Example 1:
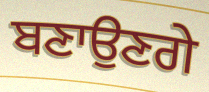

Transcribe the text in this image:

ਬਣਾਉਣਗੇ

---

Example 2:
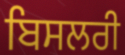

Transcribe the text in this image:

ਬਿਸਲਰੀ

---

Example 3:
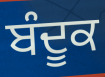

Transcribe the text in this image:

ਬੰਦੂਕ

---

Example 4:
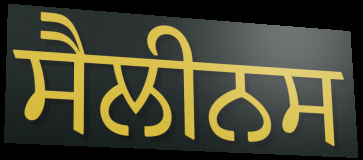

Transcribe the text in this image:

ਸੈਲੀਨਸ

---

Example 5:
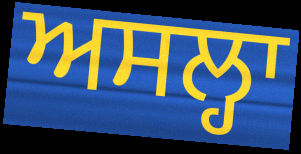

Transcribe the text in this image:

ਅਸਲ੍ਹਾ